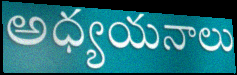
అధ్యయనాలు